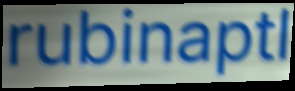
rubinaptl